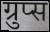
ग्रुप्स